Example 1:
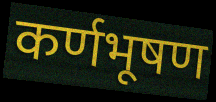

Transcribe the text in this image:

कर्णभूषण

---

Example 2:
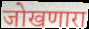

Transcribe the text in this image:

जोखणारा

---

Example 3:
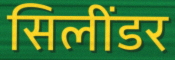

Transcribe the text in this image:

सिलींडर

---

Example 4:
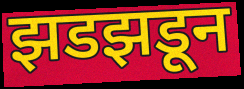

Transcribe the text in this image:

झडझडून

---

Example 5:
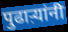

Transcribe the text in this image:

पुढाऱ्‍यांनी